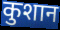
कुशान